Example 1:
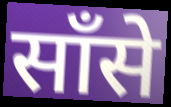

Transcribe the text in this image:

साँसे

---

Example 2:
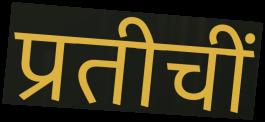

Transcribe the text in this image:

प्रतीचीं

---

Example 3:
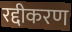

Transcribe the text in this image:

रद्दीकरण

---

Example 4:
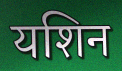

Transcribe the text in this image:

यशिन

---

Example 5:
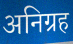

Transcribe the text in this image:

अनिग्रह